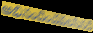
అభినందించవలసినదే